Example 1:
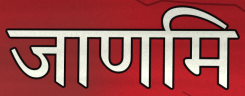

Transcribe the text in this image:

जाणमि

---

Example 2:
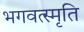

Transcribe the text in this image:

भगवत्स्मृति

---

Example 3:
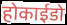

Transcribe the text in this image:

होकाईडो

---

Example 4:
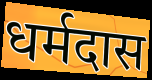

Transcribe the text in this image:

धर्मदास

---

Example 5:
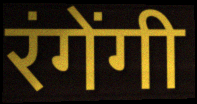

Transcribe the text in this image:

रंगेंगी